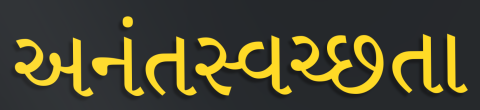
અનંતસ્વચ્છતા